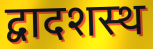
द्वादशस्थ